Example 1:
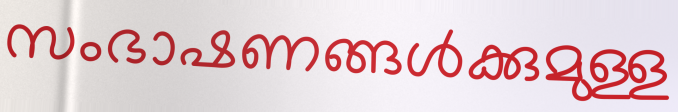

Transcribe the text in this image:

സംഭാഷണങ്ങൾക്കുമുള്ള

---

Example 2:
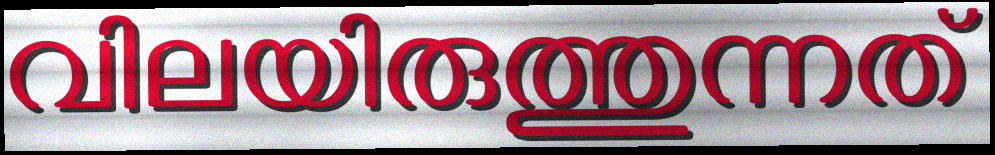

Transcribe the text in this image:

വിലയിരുത്തുന്നത്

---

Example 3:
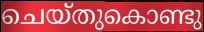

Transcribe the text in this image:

ചെയ്തുകൊണ്ടു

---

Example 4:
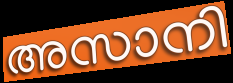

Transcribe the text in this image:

അസാനി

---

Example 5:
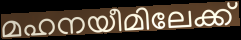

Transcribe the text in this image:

മഹനയീമിലേക്ക്